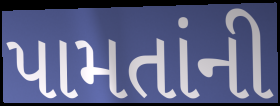
પામતાંની